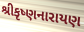
શ્રીકૃષ્ણનારાયણ